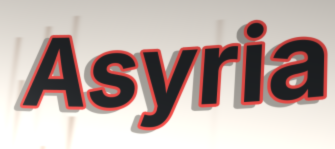
Asyria